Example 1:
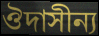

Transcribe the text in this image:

ঔদাসীন্য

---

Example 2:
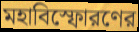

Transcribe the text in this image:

মহাবিস্ফোরণের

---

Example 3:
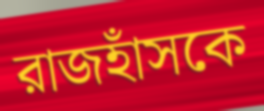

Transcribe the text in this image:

রাজহাঁসকে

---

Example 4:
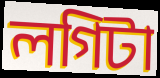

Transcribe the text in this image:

লগিটা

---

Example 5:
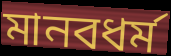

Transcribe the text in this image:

মানবধর্ম